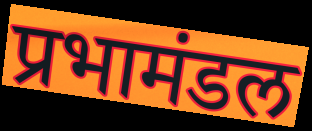
प्रभामंडल